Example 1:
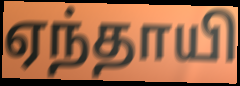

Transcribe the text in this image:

ஏந்தாயி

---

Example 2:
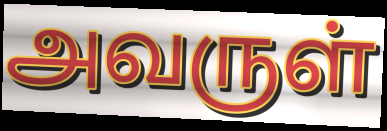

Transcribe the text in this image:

அவருள்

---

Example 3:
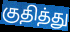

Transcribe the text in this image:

குதித்து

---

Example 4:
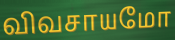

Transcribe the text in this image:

விவசாயமோ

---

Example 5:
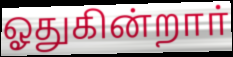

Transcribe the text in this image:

ஓதுகின்றார்